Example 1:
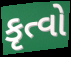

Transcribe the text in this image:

કૃત્વો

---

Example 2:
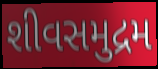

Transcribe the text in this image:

શીવસમુદ્રમ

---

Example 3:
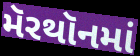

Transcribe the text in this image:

મૅરથૉનમાં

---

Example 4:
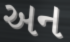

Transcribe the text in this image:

અન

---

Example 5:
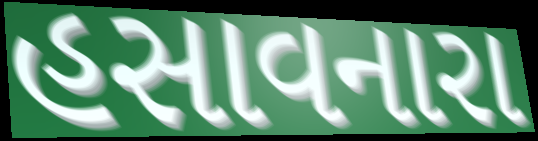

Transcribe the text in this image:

હસાવનારા